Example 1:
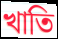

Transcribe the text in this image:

খাতি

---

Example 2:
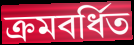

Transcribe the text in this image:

ক্ৰমবৰ্ধিত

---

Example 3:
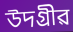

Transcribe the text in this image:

উদগ্ৰীৱ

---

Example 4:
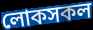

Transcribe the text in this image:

লোকসকল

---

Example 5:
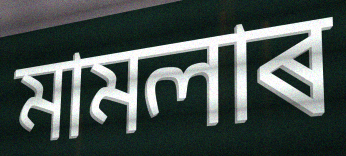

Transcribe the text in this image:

মামলাৰ